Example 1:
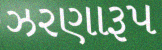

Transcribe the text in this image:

ઝરણારૂપ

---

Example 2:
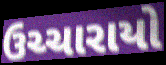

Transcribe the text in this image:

ઉચ્ચારાયો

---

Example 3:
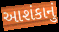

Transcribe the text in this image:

આશંકાનું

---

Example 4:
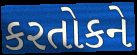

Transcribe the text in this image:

કરતોકને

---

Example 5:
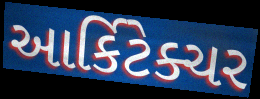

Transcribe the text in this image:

આર્કિટેક્ચર